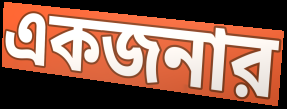
একজনার